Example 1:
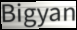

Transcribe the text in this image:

Bigyan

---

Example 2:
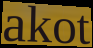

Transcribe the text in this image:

akot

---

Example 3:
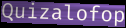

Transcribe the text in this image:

Quizalofop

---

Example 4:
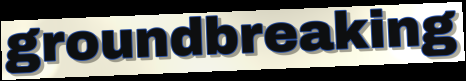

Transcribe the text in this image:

groundbreaking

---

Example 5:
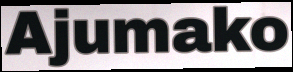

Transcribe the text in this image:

Ajumako